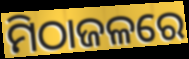
ମିଠାଜଳରେ